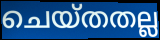
ചെയ്തതല്ല